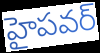
హైపవర్